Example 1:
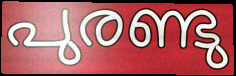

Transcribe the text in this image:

പുരണ്ടു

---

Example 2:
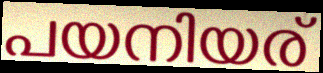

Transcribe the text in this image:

പയനിയര്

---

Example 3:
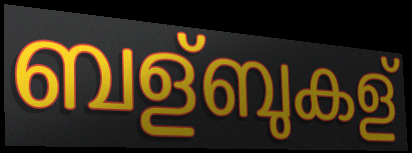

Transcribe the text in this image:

ബള്ബുകള്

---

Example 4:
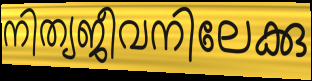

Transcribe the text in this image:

നിത്യജീവനിലേക്കു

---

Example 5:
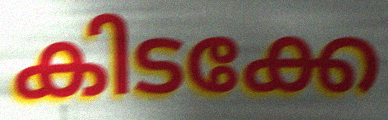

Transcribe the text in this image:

കിടക്കേ